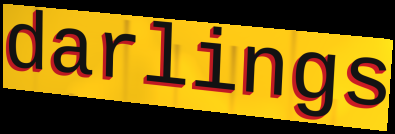
darlings